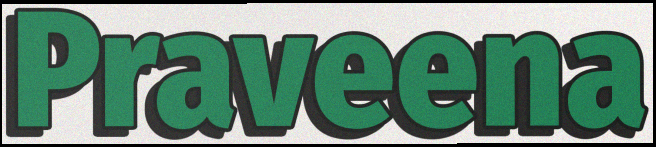
Praveena